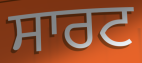
ਸਾਰਟ